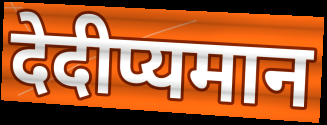
देदीप्यमान